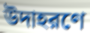
উদাহরণে